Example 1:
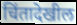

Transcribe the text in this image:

चिंतादेखील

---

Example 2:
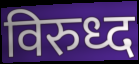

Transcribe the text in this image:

विरुध्द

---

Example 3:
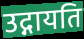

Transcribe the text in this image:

उद्गायति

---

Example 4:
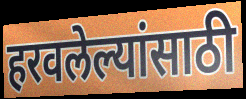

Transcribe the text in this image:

हरवलेल्यांसाठी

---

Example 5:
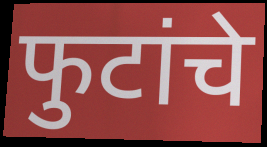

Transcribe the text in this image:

फुटांचे